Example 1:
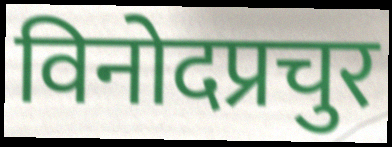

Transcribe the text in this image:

विनोदप्रचुर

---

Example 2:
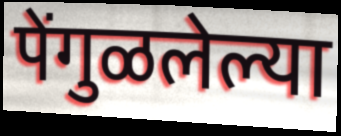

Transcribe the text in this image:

पेंगुळलेल्या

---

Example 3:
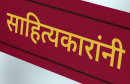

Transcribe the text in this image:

साहित्यकारांनी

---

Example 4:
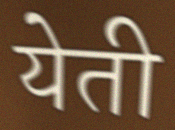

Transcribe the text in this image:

येती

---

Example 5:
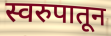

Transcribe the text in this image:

स्वरुपातून